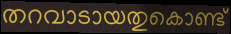
തറവാടായതുകൊണ്ട്